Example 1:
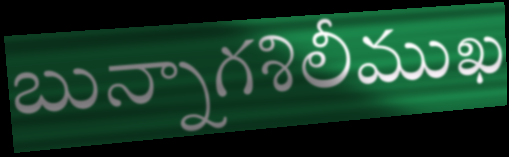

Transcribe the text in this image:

బున్నాగశిలీముఖ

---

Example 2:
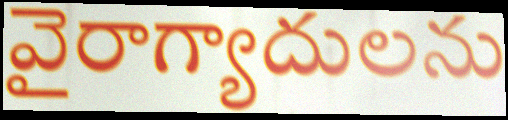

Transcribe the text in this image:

వైరాగ్యాదులను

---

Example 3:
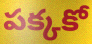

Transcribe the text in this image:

పక్కకో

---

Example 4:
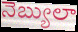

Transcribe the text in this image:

నెబ్యులా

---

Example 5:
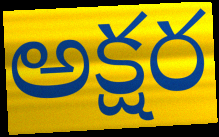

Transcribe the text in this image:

అక్షర